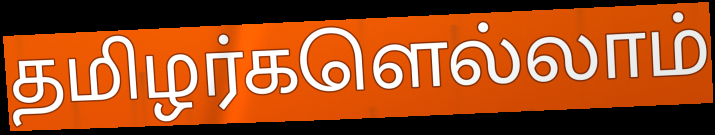
தமிழர்களெல்லாம்